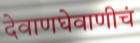
देवाणघेवाणीचं